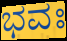
ಭವಃ